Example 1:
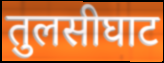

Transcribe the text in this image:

तुलसीघाट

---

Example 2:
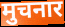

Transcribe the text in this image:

मुचनार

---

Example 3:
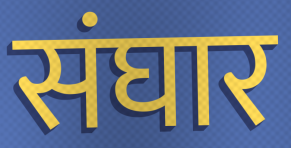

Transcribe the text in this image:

संघार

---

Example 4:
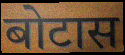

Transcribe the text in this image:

बोटास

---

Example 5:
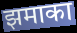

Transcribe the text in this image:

झमाका